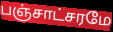
பஞ்சாட்சரமே